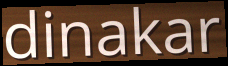
dinakar